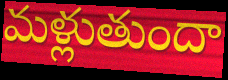
మళ్లుతుందా